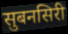
सुबनसिरी